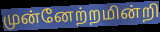
முன்னேற்றமின்றி